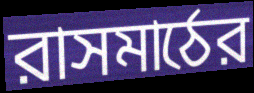
রাসমাঠের